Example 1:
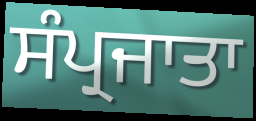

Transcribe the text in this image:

ਸੰਪ੍ਰਜਾਤਾ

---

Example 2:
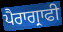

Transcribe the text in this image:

ਪੈਰਾਗ੍ਰਾਫੀ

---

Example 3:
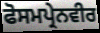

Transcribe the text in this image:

ਫੋਸਮਪ੍ਰੇਨਵੀਰ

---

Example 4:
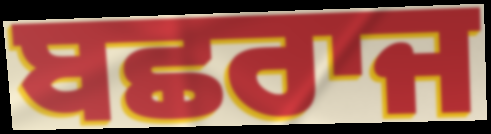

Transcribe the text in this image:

ਬਛਰਾਜ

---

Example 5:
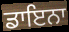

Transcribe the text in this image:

ਡਾਇਨਾ